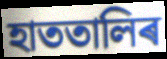
হাততালিৰ